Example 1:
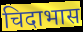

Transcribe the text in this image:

चिदाभास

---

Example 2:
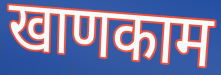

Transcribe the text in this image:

खाणकाम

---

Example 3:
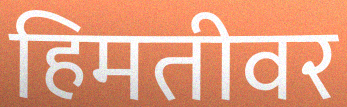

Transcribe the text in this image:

हिमतीवर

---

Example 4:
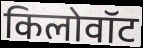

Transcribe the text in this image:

किलोवॉट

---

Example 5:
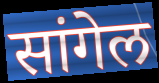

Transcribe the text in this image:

सांगेल